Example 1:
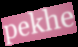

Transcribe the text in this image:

pekhe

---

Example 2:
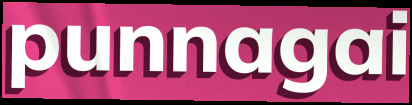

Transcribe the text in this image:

punnagai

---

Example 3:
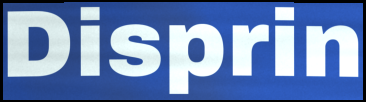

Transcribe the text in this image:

Disprin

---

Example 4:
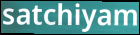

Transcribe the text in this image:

satchiyam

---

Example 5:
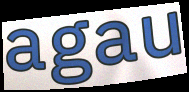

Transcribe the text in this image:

agau